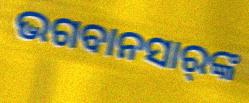
ଭଗବାନସାର୍‌ଙ୍କ